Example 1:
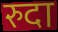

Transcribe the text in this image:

रुदा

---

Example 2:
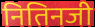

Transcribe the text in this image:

नितिनजी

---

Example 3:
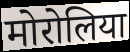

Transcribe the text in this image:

मोरोलिया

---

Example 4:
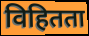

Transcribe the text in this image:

विहितता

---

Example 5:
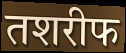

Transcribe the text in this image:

तशरीफ